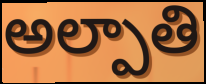
అల్పాతి